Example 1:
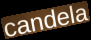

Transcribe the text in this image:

candela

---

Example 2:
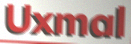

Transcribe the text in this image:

Uxmal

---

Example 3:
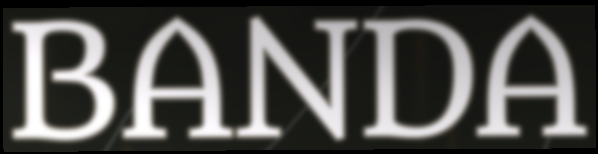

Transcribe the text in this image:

BANDA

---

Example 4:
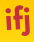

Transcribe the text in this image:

ifj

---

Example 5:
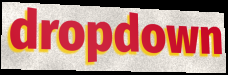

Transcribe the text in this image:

dropdown